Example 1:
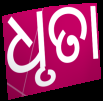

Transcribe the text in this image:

ଧୃତା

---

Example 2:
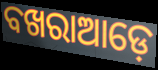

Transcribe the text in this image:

ବଖରାଆଡ଼େ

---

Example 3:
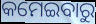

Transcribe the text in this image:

କମେଇବାରୁ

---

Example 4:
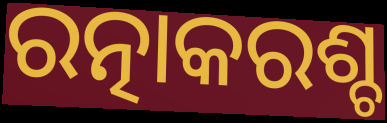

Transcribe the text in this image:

ରତ୍ନାକରଶ୍ଚ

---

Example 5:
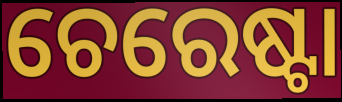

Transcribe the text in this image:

ଚେରେଷ୍ଟା